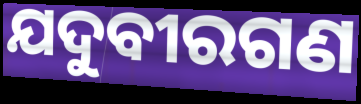
ଯଦୁବୀରଗଣ